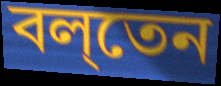
বল্তেন